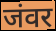
जंवर